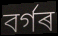
বৰ্গৰ